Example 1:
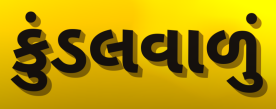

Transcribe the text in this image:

કુંડલવાળું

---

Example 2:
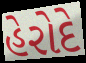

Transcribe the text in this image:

હેરોદે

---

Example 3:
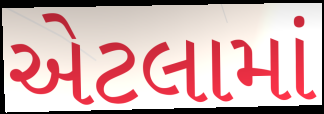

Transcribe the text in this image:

એટલામાં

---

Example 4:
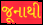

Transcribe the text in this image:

જૂનાથી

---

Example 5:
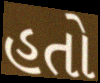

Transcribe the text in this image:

હતો